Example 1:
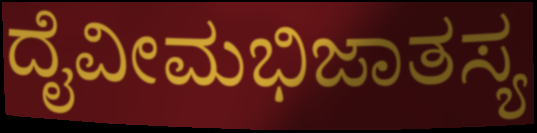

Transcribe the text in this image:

ದೈವೀಮಭಿಜಾತಸ್ಯ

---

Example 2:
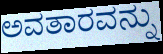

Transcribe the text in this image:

ಅವತಾರವನ್ನು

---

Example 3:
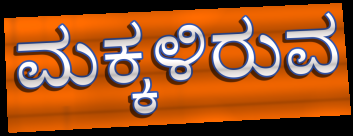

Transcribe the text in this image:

ಮಕ್ಕಳಿರುವ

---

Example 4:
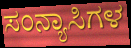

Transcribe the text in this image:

ಸಂನ್ಯಾಸಿಗಳ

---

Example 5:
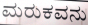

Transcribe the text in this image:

ಮರುಕವನು